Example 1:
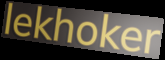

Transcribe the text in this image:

lekhoker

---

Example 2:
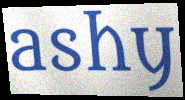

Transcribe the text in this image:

ashy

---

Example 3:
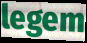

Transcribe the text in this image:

legem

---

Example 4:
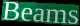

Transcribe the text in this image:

Beams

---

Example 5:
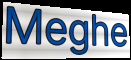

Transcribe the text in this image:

Meghe